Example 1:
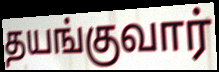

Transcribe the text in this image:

தயங்குவார்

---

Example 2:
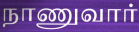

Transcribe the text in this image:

நாணுவார்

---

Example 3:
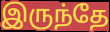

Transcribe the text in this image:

இருந்தே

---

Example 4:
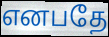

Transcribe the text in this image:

எனபதே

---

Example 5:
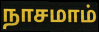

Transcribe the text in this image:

நாசமாம்